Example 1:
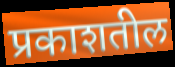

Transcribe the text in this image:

प्रकाशतील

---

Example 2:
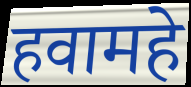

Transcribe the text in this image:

हवामहे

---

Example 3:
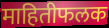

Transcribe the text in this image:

माहितीफलक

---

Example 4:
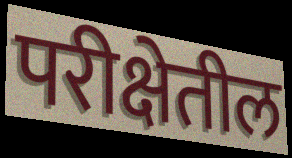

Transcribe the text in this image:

परीक्षेतील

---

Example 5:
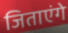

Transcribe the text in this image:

जिताएंगे